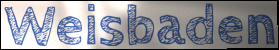
Weisbaden